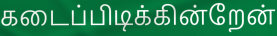
கடைப்பிடிக்கின்றேன்